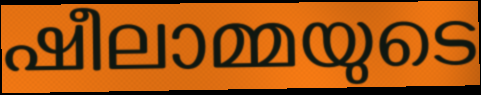
ഷീലാമ്മയുടെ